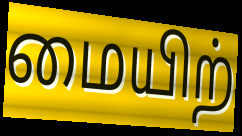
மையிற்